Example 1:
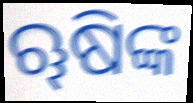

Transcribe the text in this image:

ୠଷିଙ୍କ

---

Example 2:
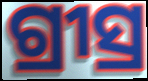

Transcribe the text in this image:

ଗ୍ରୀସ୍ର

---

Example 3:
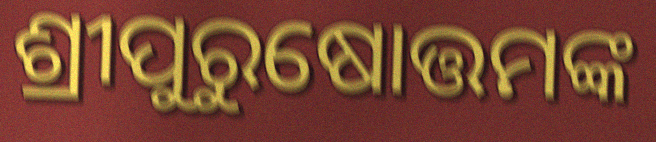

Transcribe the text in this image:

ଶ୍ରୀପୁରୁଷୋତ୍ତମଙ୍କ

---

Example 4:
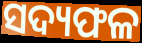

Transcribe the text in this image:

ସଦ୍ୟଫଳ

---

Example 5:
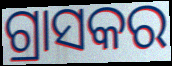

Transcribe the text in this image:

ଗ୍ରାସକର